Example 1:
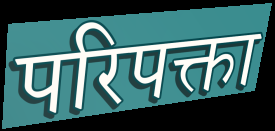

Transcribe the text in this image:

परिपक्ता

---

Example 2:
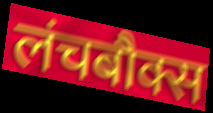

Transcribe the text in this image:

लंचबौक्स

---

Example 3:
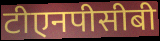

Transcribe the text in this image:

टीएनपीसीबी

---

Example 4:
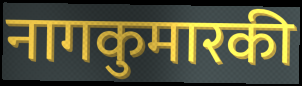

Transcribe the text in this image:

नागकुमारकी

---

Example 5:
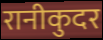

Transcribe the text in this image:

रानीकुदर